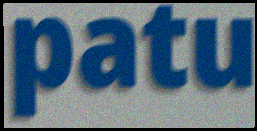
patu